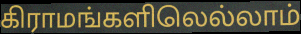
கிராமங்களிலெல்லாம்